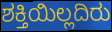
ಶಕ್ತಿಯಿಲ್ಲದಿರು